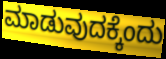
ಮಾಡುವುದಕ್ಕೆಂದು